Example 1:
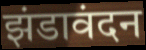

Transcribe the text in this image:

झंडावंदन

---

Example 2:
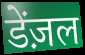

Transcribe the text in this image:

डेंज़ल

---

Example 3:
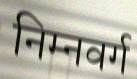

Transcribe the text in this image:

निम्नवर्ग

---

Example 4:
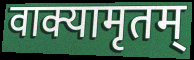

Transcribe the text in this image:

वाक्यामृतम्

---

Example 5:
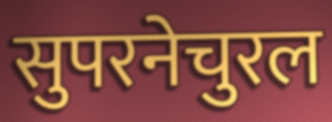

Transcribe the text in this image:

सुपरनेचुरल